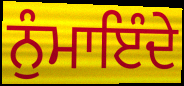
ਨੁੰਮਾਇੰਦੇ